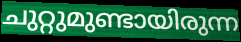
ചുറ്റുമുണ്ടായിരുന്ന